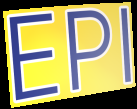
EPI